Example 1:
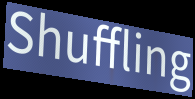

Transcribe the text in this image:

Shuffling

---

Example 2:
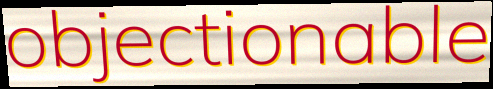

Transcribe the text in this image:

objectionable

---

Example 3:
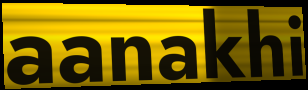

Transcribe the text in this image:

aanakhi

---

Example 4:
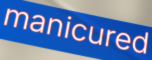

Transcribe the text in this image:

manicured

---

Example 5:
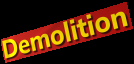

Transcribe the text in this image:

Demolition